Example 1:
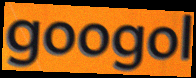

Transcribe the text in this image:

googol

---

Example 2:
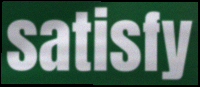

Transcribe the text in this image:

satisfy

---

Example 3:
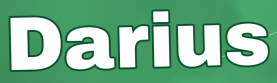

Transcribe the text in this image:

Darius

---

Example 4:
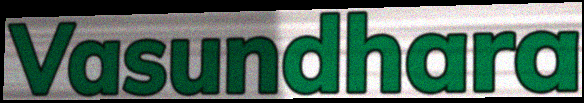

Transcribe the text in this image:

Vasundhara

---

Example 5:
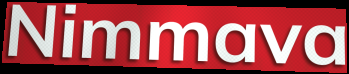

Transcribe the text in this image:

Nimmava